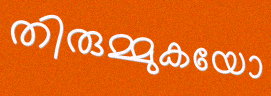
തിരുമ്മുകയോ